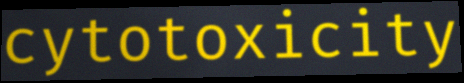
cytotoxicity